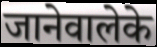
जानेवालेके